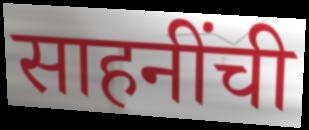
साहनींची